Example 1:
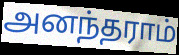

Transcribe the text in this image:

அனந்தராம்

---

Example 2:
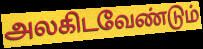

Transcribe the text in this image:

அலகிடவேண்டும்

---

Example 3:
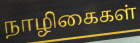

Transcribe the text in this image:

நாழிகைகள்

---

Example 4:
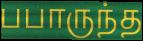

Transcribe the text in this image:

பபாருந்த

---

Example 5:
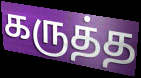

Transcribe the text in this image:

கருத்த